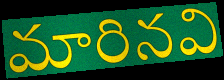
మారినవి